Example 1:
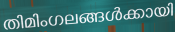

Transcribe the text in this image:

തിമിംഗലങ്ങൾക്കായി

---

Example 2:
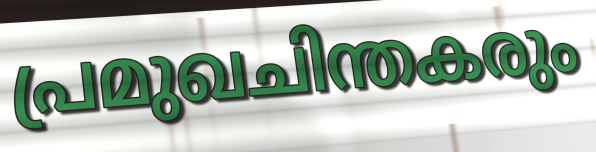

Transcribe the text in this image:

പ്രമുഖചിന്തകരും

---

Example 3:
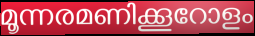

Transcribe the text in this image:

മൂന്നരമണിക്കൂറോളം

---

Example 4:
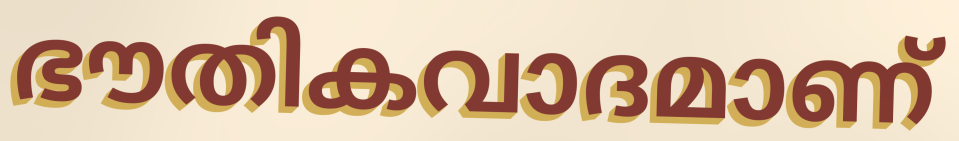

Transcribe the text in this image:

ഭൗതികവാദമാണ്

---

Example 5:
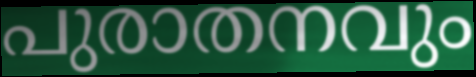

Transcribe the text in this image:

പുരാതനവും